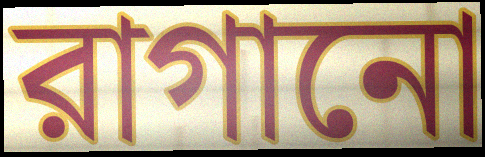
রাগানো